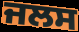
ਜਲਸ